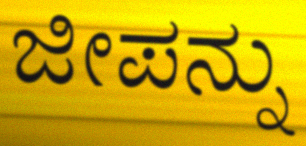
ಜೀಪನ್ನು